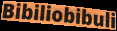
Bibiliobibuli